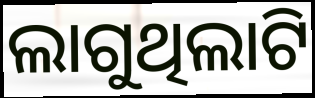
ଲାଗୁଥିଲାଟି